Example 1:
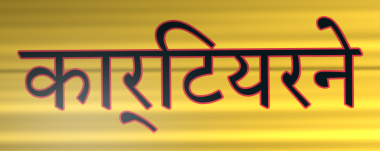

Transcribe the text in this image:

कार्टियरने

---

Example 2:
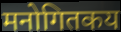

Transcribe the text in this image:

मनोगितकय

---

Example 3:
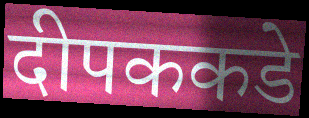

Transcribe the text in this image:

दीपककडे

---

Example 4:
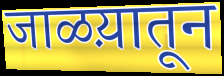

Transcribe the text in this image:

जाळय़ातून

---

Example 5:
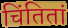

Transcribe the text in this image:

चिंतितां